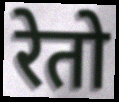
रेतो